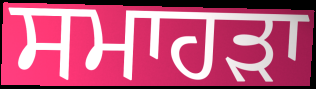
ਸਮਾਹੜਾ